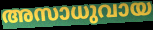
അസാധുവായ